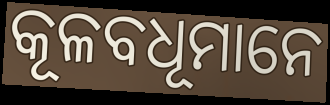
କୂଳବଧୂମାନେ